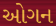
ઓગન